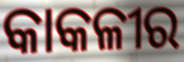
କାକଳୀର